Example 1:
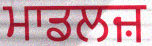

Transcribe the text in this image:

ਮਾਡਲਜ਼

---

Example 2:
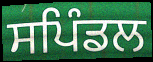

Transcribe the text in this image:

ਸਪਿੰਡਲ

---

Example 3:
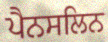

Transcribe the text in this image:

ਪੈਨਸਲਿਨ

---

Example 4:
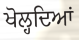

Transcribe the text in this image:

ਖੋਲ੍ਹਦਿਆਂ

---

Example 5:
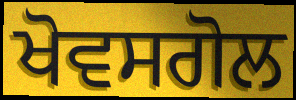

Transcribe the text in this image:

ਖੋਵਸਗੋਲ